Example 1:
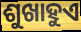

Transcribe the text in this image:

ଶୁଖାହୁଏ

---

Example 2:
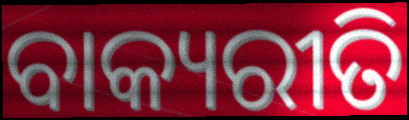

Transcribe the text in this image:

ବାକ୍ୟରୀତି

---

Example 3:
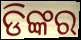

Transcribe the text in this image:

ଡିଙ୍କର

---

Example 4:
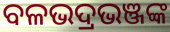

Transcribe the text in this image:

ବଳଭଦ୍ରଭଞ୍ଜଙ୍କ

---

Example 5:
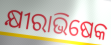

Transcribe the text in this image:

କ୍ଷୀରାଭିଷେକ